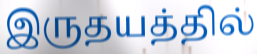
இருதயத்தில்